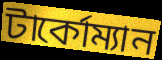
টার্কোম্যান